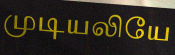
முடியலியே